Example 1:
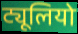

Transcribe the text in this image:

ट्यूलियो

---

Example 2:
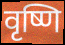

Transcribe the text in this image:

वृष्णि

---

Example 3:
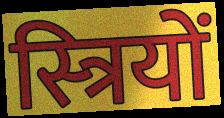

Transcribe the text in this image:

स्‍त्रियों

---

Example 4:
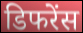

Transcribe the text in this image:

डिफरेंस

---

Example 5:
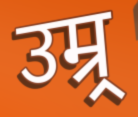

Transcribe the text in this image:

उम्र्र